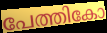
പേത്തികോ